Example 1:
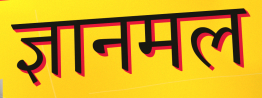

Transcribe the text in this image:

ज्ञानमल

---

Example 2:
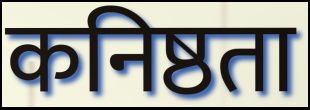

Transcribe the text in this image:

कनिष्ठता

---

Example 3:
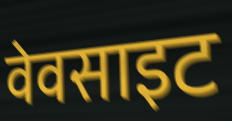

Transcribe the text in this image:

वेवसाइट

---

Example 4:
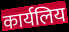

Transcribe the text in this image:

कार्यलिय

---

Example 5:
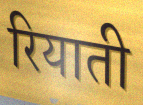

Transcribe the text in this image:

रियाती